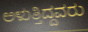
ಅಳುತ್ತಿದ್ದವರು